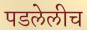
पडलेलीच